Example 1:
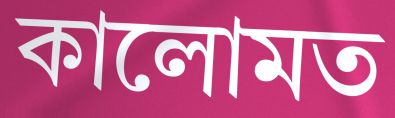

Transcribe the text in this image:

কালোমত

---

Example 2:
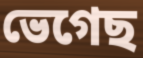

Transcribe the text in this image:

ভেগেছ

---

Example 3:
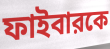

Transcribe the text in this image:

ফাইবারকে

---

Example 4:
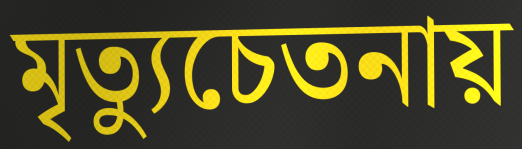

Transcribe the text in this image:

মৃত্যুচেতনায়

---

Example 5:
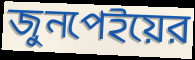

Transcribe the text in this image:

জুনপেইয়ের